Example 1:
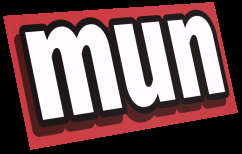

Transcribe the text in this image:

mun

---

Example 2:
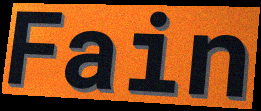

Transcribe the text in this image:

Fain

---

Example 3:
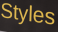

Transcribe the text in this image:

Styles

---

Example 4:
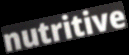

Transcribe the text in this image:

nutritive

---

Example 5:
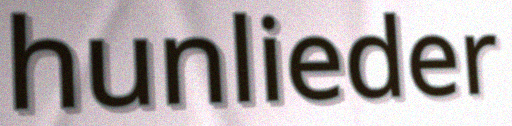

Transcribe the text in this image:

hunlieder